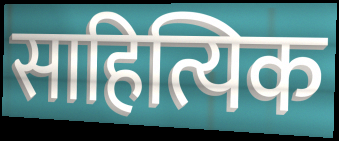
साहित्यिक